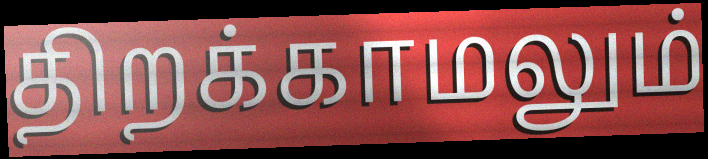
திறக்காமலும்